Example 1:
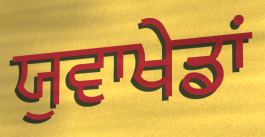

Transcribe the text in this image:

ਯੁਵਾਖੇਡਾਂ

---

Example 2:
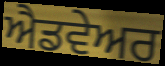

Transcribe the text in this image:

ਐਡਵੇਅਰ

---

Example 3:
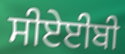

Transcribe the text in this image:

ਸੀਏਈਬੀ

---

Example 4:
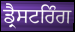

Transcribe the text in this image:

ਡ੍ਰੈਸਟਰਿੰਗ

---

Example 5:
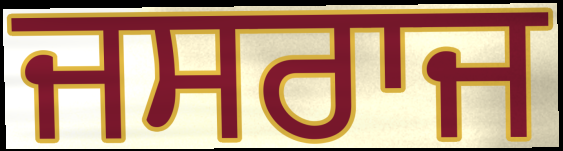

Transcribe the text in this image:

ਜਸਰਾਜ